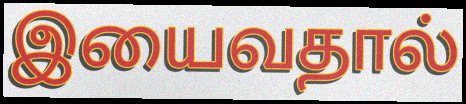
இயைவதால்